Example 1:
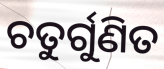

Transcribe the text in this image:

ଚତୁର୍ଗୁଣିତ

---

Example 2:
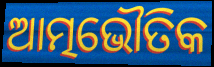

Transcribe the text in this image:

ଆତ୍ମଭୌତିକ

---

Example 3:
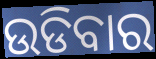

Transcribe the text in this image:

ଉଡିବାର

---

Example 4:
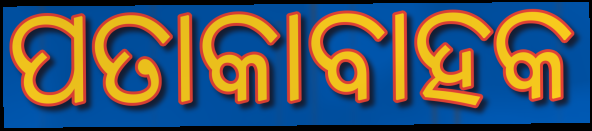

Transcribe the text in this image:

ପତାକାବାହକ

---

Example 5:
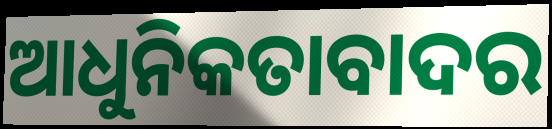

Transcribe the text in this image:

ଆଧୁନିକତାବାଦର